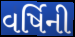
વર્ષિની